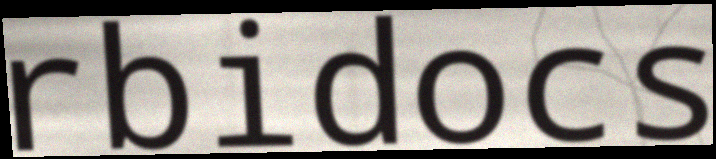
rbidocs